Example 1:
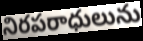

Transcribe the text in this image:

నిరపరాధులును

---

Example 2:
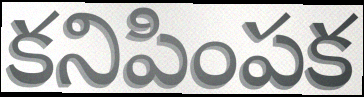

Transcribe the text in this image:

కనిపింపక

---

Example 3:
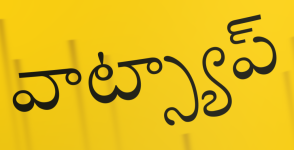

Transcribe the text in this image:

వాట్స్యాప్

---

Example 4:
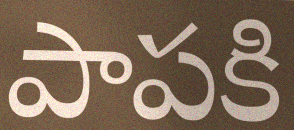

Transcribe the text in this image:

పాపకి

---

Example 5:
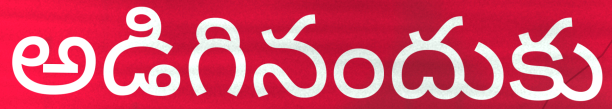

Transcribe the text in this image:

అడిగినందుకు